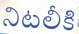
నిటలీకి